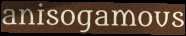
anisogamous